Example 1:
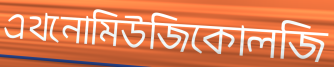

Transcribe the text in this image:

এথনোমিউজিকোলজি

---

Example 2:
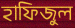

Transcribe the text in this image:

হাফিজুল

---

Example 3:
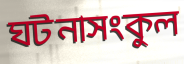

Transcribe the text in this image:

ঘটনাসংকুল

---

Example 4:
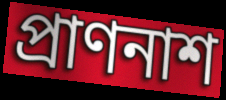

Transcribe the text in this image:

প্রাণনাশ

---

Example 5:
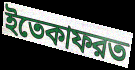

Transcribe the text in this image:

ইতেকাফরত